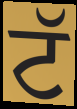
ਟੱ